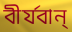
বীর্যবান্